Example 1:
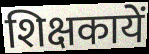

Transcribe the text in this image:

शिक्षकायें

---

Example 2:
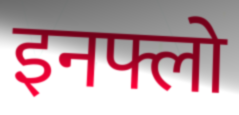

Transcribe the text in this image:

इनफ्लो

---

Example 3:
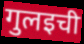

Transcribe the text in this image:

गुलइची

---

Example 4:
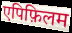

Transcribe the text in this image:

एपिफ़िलम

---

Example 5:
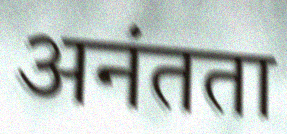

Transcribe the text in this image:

अनंतता